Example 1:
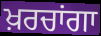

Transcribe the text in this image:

ਖ਼ਰਚਾਂਗਾ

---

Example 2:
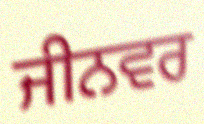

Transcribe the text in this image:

ਜੀਨਵਰ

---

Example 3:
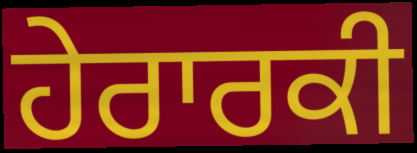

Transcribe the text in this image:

ਹੇਰਾਰਕੀ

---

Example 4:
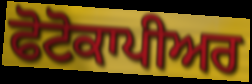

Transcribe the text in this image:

ਫੋਟੋਕਾਪੀਅਰ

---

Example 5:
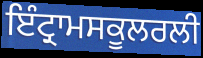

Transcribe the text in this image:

ਇੰਟ੍ਰਾਮਸਕੂਲਰਲੀ